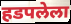
हडपलेला